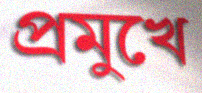
প্ৰমুখে